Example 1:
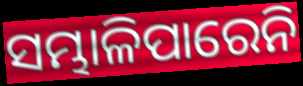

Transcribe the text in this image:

ସମ୍ଭାଳିପାରେନି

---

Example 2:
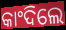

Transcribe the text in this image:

କାଂଦିଲେ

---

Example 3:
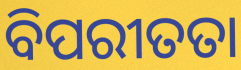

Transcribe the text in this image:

ବିପରୀତତା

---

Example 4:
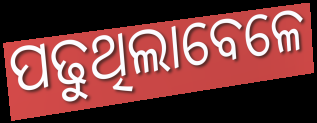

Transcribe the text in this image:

ପଢୁଥିଲାବେଳେ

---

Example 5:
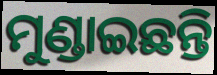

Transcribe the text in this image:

ମୁଣ୍ଡାଇଛନ୍ତି